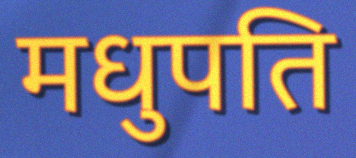
मधुपति